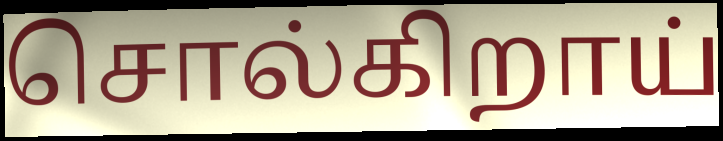
சொல்கிறாய்